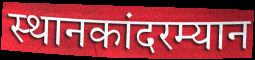
स्थानकांदरम्यान